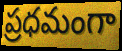
ప్రధమంగా